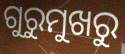
ଗୁରୁମୁଖରୁ